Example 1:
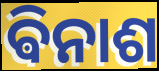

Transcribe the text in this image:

ଵିନାଶ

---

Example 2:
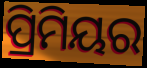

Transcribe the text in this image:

ପ୍ରିମିୟର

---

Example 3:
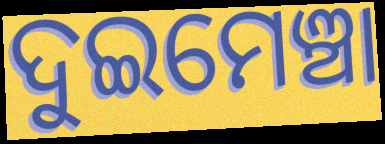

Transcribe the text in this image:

ଦୁଇମେଞ୍ଚା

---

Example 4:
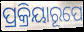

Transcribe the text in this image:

ପ୍ରକ୍ରିୟାରୂପେ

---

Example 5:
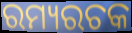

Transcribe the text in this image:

ରମ୍ୟରଚକ